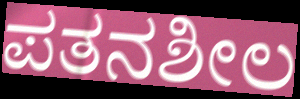
ಪತನಶೀಲ